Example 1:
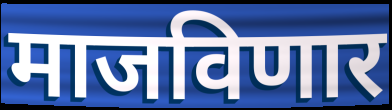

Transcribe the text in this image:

माजविणार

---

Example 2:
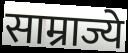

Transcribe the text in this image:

साम्राज्ये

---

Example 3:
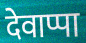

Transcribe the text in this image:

देवाप्पा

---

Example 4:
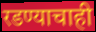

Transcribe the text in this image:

रडण्याचाही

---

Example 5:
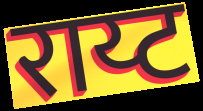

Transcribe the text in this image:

राय्ट